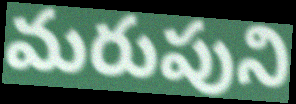
మరుపుని